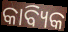
କାବ୍ୟିକ